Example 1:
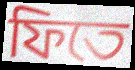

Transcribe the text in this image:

ফিতে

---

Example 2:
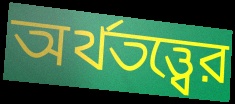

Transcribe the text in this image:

অর্থতত্ত্বের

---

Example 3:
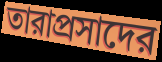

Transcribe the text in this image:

তারাপ্রসাদের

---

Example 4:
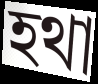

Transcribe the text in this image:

হথা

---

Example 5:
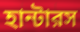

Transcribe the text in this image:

হান্টারস